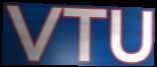
VTU